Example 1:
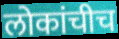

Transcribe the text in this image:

लोकांचीच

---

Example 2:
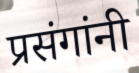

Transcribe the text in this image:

प्रसंगांनी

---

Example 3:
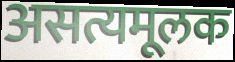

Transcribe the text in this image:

असत्यमूलक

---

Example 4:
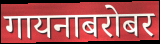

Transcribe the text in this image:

गायनाबरोबर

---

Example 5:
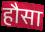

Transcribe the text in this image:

हौसा